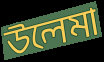
উলেমা